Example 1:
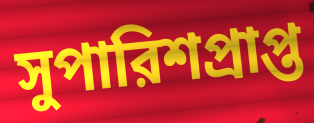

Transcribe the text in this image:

সুপারিশপ্রাপ্ত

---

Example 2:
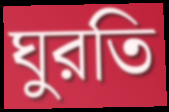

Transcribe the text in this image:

ঘুরতি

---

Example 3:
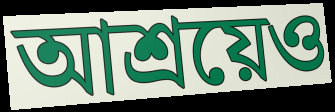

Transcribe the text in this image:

আশ্রয়েও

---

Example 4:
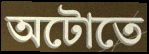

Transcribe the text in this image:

অটোতে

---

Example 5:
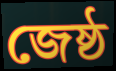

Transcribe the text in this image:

জেষ্ঠ